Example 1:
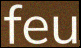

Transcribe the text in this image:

feu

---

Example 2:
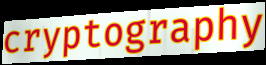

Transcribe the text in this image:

cryptography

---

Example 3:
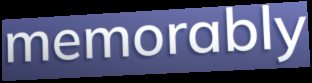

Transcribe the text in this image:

memorably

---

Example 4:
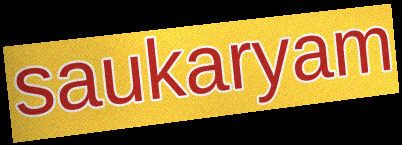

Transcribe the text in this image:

saukaryam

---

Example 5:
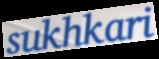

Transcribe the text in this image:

sukhkari